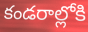
కండరాల్లోకి